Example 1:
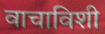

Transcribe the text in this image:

वाचाविशी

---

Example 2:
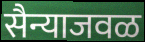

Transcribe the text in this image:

सैन्याजवळ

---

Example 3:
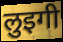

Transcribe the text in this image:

लुइगी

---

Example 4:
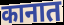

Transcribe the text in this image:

कानात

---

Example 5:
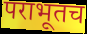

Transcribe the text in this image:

पराभूतच